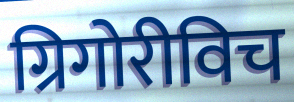
ग्रिगोरीविच